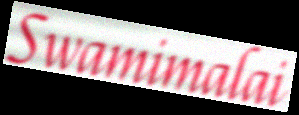
Swamimalai